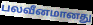
பலவீனமானது